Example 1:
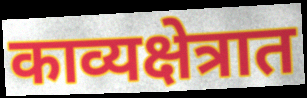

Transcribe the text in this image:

काव्यक्षेत्रात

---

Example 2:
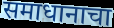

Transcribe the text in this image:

समाधानाचा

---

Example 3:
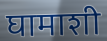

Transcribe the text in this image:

घामाशी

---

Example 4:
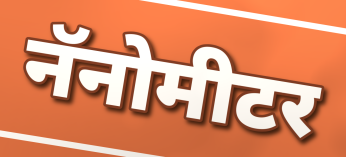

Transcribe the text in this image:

नॅनोमीटर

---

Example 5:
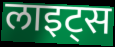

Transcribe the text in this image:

लाइट्स